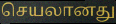
செயலானது